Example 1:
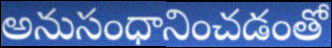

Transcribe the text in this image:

అనుసంధానించడంతో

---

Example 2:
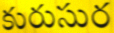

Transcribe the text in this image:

కురుసుర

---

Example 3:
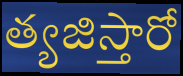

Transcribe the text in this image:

త్యజిస్తారో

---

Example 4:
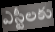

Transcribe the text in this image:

ఎస్టీలకు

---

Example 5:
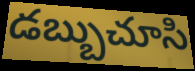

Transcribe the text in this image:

డబ్బుచూసి